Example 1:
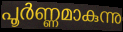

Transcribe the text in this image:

പൂർണ്ണമാകുന്നു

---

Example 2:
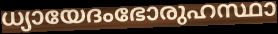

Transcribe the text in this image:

ധ്യായേദംഭോരുഹസ്ഥാ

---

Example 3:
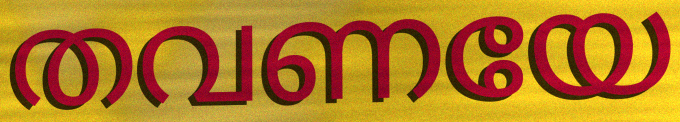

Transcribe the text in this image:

തവണയേ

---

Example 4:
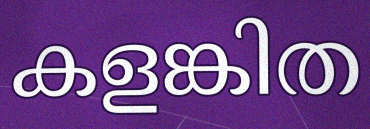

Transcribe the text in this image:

കളങ്കിത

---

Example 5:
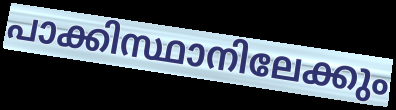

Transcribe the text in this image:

പാക്കിസ്ഥാനിലേക്കും